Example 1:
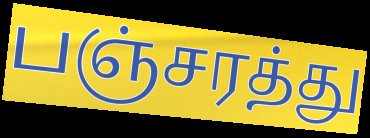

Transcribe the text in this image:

பஞ்சரத்து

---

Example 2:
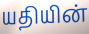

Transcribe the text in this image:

யதியின்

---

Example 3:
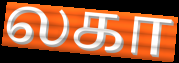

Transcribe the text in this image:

லகா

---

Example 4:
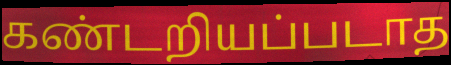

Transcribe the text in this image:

கண்டறியப்படாத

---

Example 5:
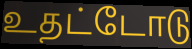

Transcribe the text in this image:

உதட்டோடு